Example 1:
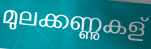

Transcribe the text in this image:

മുലക്കണ്ണുകള്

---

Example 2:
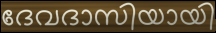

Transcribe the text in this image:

ദേവദാസിയായി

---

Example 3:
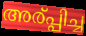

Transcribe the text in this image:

അര്പ്പിച്ച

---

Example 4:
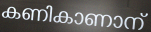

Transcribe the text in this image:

കണികാണാന്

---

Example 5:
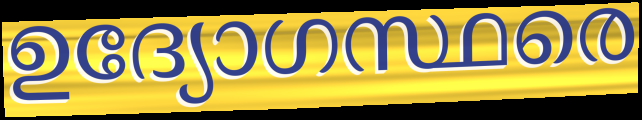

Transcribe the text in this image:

ഉദ്യോഗസ്ഥരെ